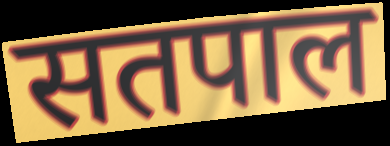
सतपाल